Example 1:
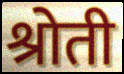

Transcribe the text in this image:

श्रोती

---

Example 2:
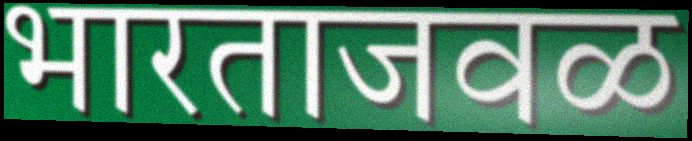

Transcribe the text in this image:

भारताजवळ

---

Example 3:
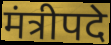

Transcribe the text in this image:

मंत्रीपदे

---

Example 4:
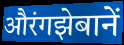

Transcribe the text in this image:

औरंगझेबानें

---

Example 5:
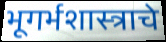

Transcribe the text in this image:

भूगर्भशास्त्राचे